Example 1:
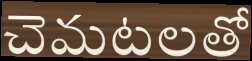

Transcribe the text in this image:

చెమటలతో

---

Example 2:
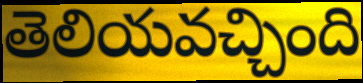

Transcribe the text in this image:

తెలియవచ్చింది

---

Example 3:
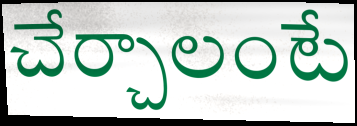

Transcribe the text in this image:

చేర్చాలంటే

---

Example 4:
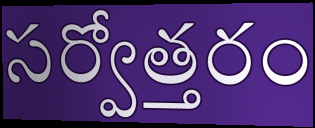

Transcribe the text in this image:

సర్వోత్తరం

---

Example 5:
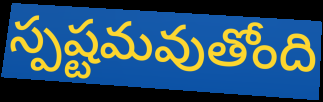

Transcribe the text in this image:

స్పష్టమవుతోంది